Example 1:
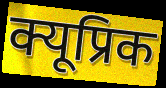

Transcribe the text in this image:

क्यूप्रिक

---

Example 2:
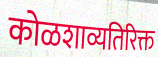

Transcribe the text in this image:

कोळशाव्यतिरिक्त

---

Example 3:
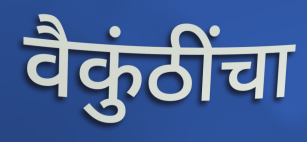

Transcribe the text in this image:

वैकुंठींचा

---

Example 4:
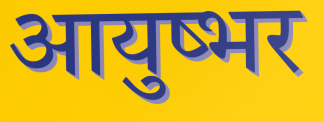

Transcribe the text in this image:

आयुष्भर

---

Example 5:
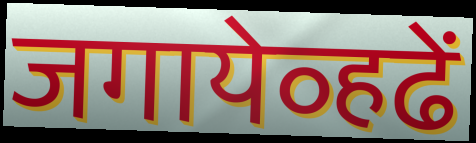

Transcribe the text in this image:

जगायेव्हढें